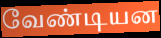
வேண்டியன